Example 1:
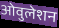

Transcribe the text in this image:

ओवुलेशन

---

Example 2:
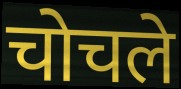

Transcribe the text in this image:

चोचले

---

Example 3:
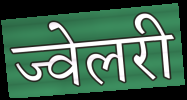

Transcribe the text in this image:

ज्वेलरी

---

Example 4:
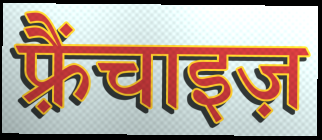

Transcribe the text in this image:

फ़्रैंचाइज़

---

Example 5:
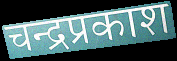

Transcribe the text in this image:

चन्द्रप्रकाश